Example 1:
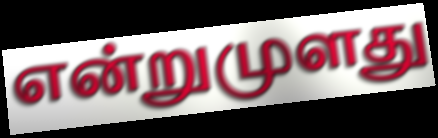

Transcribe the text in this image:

என்றுமுளது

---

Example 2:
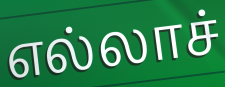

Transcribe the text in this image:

எல்லாச்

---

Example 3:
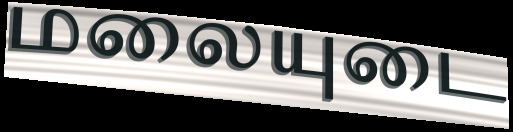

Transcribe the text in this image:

மலையுடை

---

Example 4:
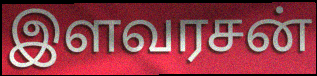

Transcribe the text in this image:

இளவரசன்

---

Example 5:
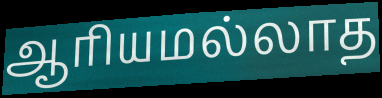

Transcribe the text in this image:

ஆரியமல்லாத